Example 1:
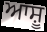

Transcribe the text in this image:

ਆਸ਼ੂ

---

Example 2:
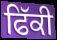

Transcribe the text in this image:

ਫਿੱਕੀ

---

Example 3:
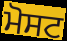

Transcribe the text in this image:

ਮੋਸਟ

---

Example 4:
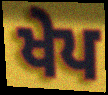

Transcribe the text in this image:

ਖੇਪ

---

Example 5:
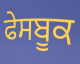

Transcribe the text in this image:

ਫੇਸਬੂਕ